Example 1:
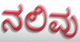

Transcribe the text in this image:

ನಲಿವು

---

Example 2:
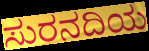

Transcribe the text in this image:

ಸುರನದಿಯ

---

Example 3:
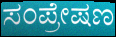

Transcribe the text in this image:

ಸಂಪ್ರೇಷಣ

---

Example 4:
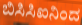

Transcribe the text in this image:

ಬಿಸಿಸಿಐನಿಂದ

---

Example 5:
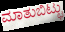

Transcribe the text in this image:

ಮಾತುಬಿಟ್ಟು